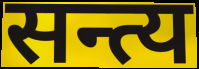
सन्त्य